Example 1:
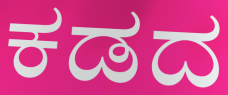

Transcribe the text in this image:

ಕಡದ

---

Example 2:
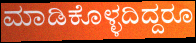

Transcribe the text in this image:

ಮಾಡಿಕೊಳ್ಳದಿದ್ದರೂ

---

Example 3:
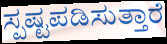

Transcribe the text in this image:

ಸ್ಪಷ್ಟಪಡಿಸುತ್ತಾರೆ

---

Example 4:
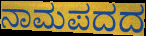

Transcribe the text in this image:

ನಾಮಪದದ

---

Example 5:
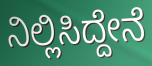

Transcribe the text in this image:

ನಿಲ್ಲಿಸಿದ್ದೇನೆ